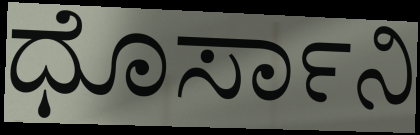
ಧೊರ್ಸಾನಿ